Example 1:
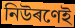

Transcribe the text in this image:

নিউৰণেই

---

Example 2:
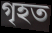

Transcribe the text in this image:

গৃহত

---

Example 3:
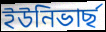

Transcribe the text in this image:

ইউনিভাৰ্ছ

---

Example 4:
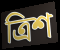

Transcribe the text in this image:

ত্ৰিশ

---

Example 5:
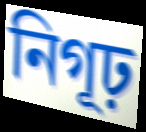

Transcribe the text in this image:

নিগূঢ়